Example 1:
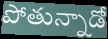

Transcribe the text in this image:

పోతున్నాడో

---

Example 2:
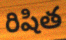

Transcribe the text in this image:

రిషిత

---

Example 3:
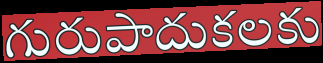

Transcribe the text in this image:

గురుపాదుకలకు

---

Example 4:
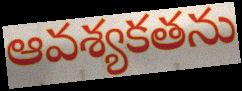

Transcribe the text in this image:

ఆవశ్యకతను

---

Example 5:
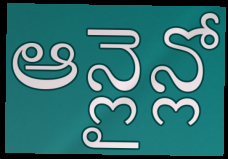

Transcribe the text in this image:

ఆన్లైన్లో